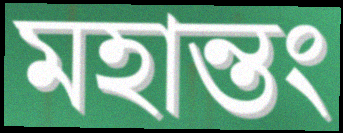
মহান্তং